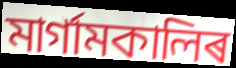
মাৰ্গামকালিৰ